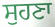
ਸੁਹਣਾ